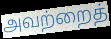
அவற்றைத்